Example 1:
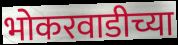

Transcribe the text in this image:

भोकरवाडीच्या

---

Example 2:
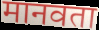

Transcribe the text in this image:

मानवता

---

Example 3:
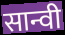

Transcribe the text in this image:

सान्वी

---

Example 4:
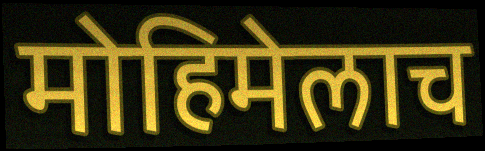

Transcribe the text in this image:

मोहिमेलाच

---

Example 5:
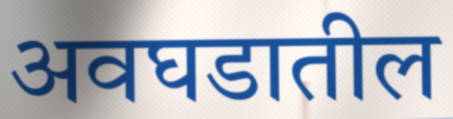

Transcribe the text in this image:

अवघडातील